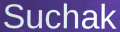
Suchak